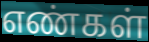
எண்கள்